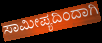
ಸಾಮೀಪ್ಯದಿಂದಾಗಿ